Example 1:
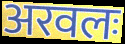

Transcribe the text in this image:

अरवलः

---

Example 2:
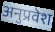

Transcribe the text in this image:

अनुप्रवेश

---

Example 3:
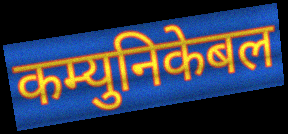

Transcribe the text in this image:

कम्युनिकेबल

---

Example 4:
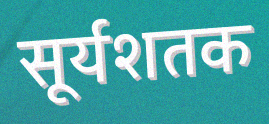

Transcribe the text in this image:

सूर्यशतक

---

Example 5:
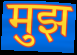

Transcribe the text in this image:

मुझ